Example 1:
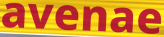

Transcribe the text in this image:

avenae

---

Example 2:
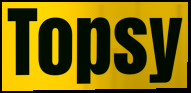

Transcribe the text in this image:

Topsy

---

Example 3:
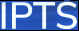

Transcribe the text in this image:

IPTS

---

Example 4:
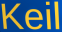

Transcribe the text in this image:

Keil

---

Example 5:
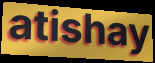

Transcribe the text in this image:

atishay